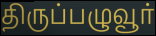
திருப்பழுவூர்